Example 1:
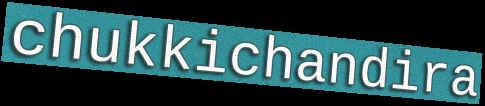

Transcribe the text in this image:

chukkichandira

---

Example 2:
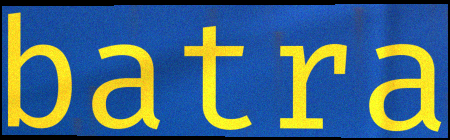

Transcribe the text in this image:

batra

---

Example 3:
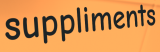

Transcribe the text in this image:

suppliments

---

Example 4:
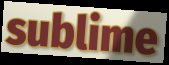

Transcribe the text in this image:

sublime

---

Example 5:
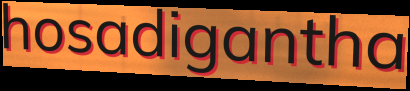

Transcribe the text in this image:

hosadigantha